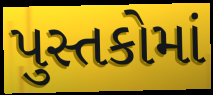
પુસ્તકોમાં